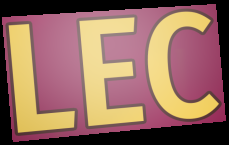
LEC